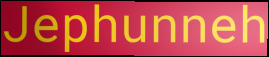
Jephunneh